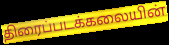
திரைப்படக்கலையின்